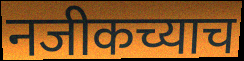
नजीकच्याच